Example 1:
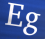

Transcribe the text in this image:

Eg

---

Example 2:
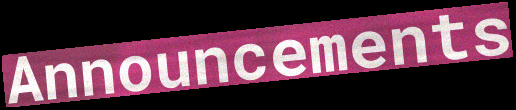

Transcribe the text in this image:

Announcements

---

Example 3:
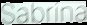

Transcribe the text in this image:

Sabrina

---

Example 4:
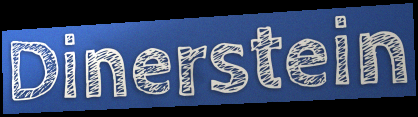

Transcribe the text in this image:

Dinerstein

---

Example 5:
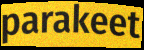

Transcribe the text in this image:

parakeet